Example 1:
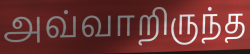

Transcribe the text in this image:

அவ்வாறிருந்த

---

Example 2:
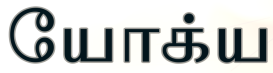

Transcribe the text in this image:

யோக்ய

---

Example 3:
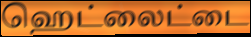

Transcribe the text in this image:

ஹெட்லைட்டை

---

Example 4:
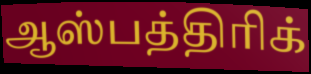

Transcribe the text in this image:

ஆஸ்பத்திரிக்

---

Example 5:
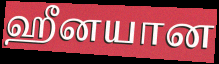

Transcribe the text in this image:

ஹீனயான